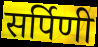
सर्पिणी